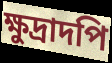
ক্ষুদ্রাদপি